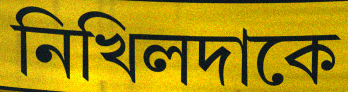
নিখিলদাকে